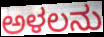
ಅಳಲನು